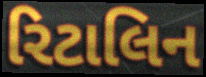
રિટાલિન